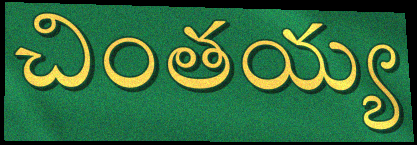
చింతయ్య